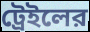
ট্রেইলের